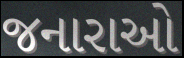
જનારાઓ